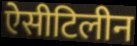
ऐसीटिलीन